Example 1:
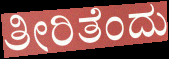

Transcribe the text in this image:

ತೀರಿತೆಂದು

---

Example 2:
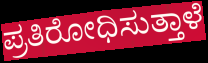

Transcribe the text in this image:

ಪ್ರತಿರೋಧಿಸುತ್ತಾಳೆ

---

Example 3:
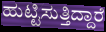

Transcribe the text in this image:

ಹುಟ್ಟಿಸುತ್ತಿದ್ದಾರೆ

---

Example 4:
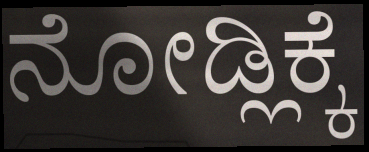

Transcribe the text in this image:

ನೋಡ್ಲಿಕ್ಕೆ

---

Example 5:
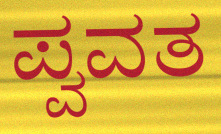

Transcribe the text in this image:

ಪ್ವವತ